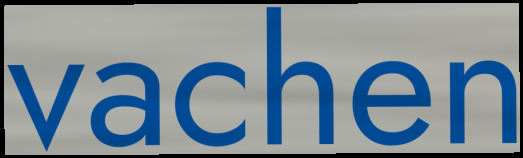
vachen